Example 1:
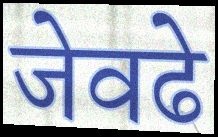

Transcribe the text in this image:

जेवढे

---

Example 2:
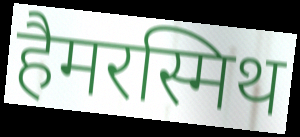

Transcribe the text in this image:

हैमरस्मिथ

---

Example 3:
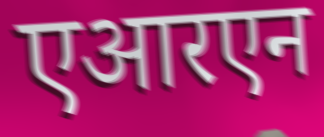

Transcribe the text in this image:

एआरएन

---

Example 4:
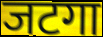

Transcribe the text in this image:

जटगा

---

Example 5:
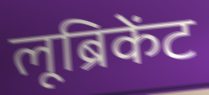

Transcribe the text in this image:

लूब्रिकेंट